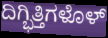
ದಿಗ್ಭಿತ್ತಿಗಳೊಳ್